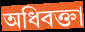
অধিবক্তা